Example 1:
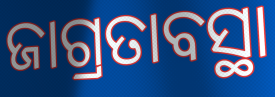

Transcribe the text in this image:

ଜାଗ୍ରତାବସ୍ଥା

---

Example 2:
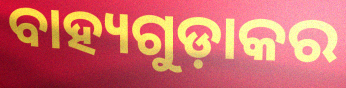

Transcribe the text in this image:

ବାହ୍ୟଗୁଡ଼ାକର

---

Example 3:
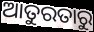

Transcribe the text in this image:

ଆତୁରତାରୁ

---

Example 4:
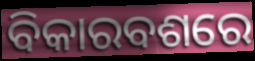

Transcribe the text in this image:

ବିକାରବଶରେ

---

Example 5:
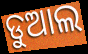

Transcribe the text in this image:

ଡୁଆଲ